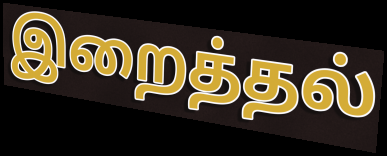
இறைத்தல்